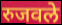
रुजवले